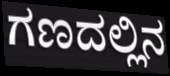
ಗಣದಲ್ಲಿನ